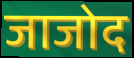
जाजोद